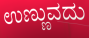
ಉಣ್ಣುವದು